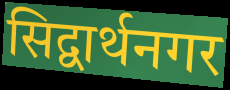
सिद्वार्थनगर